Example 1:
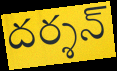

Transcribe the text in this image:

దర్శన్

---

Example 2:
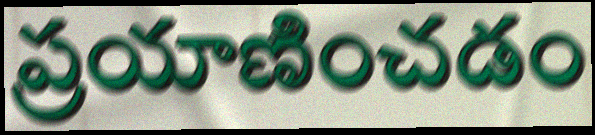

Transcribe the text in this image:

ప్రయాణించడం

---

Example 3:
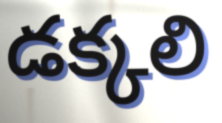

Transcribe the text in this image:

డక్కలి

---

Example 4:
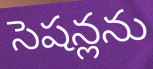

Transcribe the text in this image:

సెషన్లను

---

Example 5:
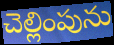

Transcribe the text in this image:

చెల్లింపును